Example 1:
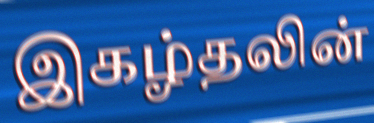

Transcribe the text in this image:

இகழ்தலின்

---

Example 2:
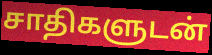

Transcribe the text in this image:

சாதிகளுடன்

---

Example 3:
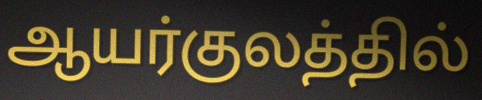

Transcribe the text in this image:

ஆயர்குலத்தில்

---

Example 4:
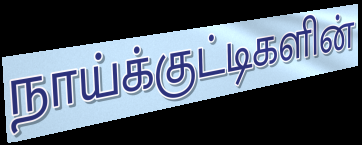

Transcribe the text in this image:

நாய்க்குட்டிகளின்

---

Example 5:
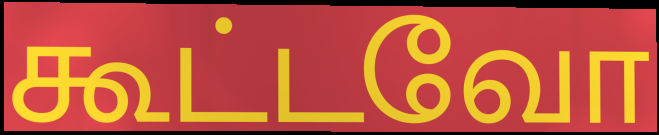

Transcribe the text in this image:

கூட்டவோ